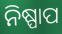
ନିଷ୍ପାପ